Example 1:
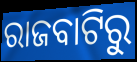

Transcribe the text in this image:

ରାଜବାଟିରୁ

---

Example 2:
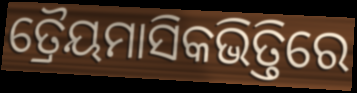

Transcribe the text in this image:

ତ୍ରୈୟମାସିକଭିତ୍ତିରେ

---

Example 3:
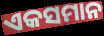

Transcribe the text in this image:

ଏକସମାନ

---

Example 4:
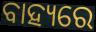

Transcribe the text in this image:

ବାହ୍ୟରେ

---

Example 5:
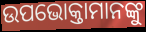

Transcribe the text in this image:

ଉପଭୋକ୍ତାମାନଙ୍କୁ